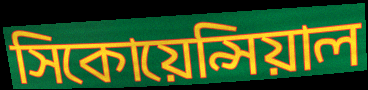
সিকোয়েন্সিয়াল